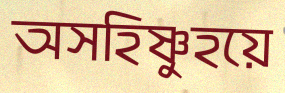
অসহিষ্ণুহয়ে